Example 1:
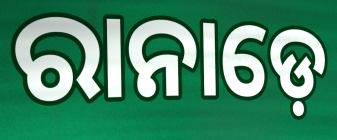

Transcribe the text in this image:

ରାନାଡ଼େ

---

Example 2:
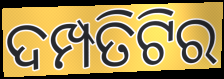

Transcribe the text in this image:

ଦମ୍ପତିଟିର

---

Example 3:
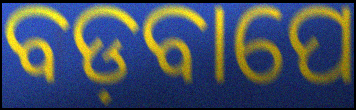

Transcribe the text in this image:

ବଡ଼ବାପେ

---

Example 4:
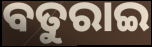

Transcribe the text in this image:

ବତୁରାଇ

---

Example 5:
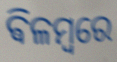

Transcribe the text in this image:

ଵିଳମ୍ବରେ